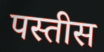
पस्तीस